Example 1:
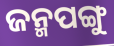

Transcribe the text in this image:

ଜନ୍ମପଙ୍ଗୁ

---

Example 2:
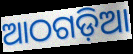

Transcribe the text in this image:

ଆଠଗଡ଼ିଆ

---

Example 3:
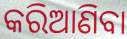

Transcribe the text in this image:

କରିଆଣିବା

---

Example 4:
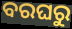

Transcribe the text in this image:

ବରଘରୁ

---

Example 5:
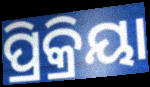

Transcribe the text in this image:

ପ୍ରିକ୍ରିୟା